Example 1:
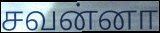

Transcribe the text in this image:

சவன்னா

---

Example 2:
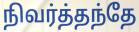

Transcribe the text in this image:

நிவர்த்தந்தே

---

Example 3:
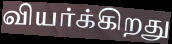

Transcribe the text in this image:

வியர்க்கிறது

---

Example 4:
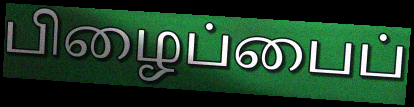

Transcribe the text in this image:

பிழைப்பைப்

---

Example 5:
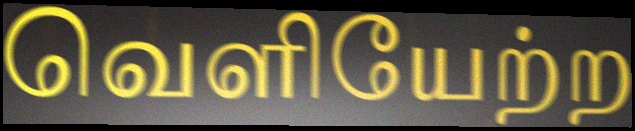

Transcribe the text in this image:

வெளியேற்ற